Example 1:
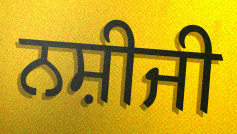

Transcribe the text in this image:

ਨਸ਼ੀਜੀ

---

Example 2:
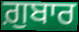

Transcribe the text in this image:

ਗ਼ੁਬਾਰ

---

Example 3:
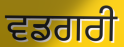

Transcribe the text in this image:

ਵਡਗਰੀ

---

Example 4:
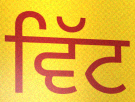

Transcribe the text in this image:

ਵਿੱਟ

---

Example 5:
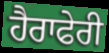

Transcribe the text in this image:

ਹੈਰਾਫੇਰੀ